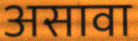
असावा